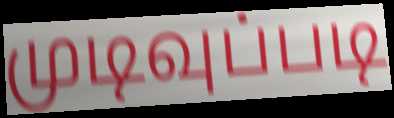
முடிவுப்படி